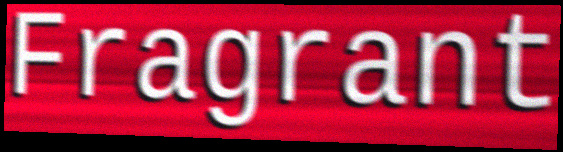
Fragrant